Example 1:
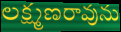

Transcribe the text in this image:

లక్ష్మణరావును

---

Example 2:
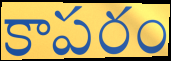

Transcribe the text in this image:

కాపరం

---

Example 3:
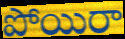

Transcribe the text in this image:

పోయిరా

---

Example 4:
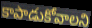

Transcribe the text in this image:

కాపాడుకోవాలని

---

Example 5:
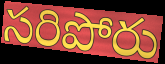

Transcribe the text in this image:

సరిపోరు